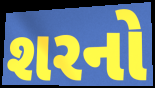
શરનો